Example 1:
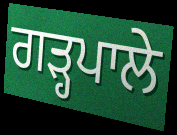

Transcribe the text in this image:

ਗੜ੍ਹਪਾਲੇ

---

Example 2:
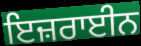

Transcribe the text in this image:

ਇਜ਼ਰਾਈਨ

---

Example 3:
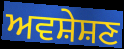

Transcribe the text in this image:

ਅਵਸ਼ੇਸ਼ਣ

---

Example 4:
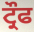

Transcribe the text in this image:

ਟ੍ਰੌਫ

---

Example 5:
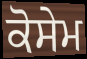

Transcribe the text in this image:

ਕੋਸੇਮ